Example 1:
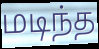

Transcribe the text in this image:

மடிந்த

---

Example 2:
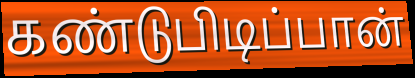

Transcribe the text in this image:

கண்டுபிடிப்பான்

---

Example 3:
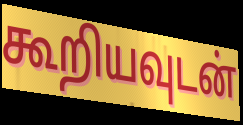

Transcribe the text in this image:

கூறியவுடன்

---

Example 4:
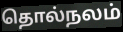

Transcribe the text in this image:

தொல்நலம்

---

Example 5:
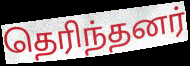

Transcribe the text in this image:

தெரிந்தனர்